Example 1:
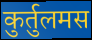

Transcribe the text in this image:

कुर्तुलमस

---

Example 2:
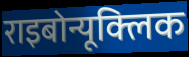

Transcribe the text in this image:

राइबोन्यूक्लिक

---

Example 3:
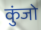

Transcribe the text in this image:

कुंजो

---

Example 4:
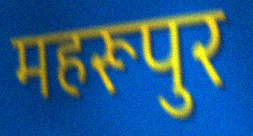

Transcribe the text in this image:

महरूपुर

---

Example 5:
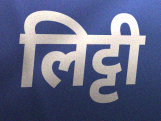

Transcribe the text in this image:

लिट्टी